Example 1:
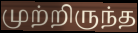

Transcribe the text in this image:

முற்றிருந்த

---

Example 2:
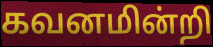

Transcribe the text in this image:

கவனமின்றி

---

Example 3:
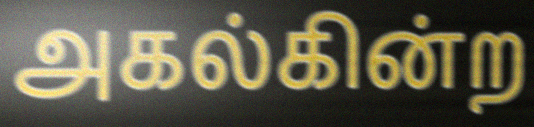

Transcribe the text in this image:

அகல்கின்ற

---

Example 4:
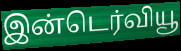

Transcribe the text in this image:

இன்டெர்வியூ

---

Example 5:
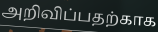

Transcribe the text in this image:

அறிவிப்பதற்காக